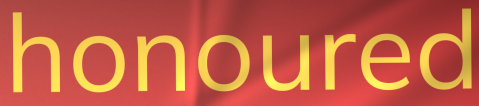
honoured